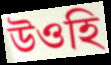
উওহি